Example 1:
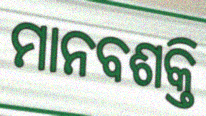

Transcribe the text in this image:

ମାନବଶକ୍ତି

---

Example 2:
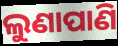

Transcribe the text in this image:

ଲୁଣାପାଣି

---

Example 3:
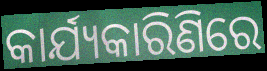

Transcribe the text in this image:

କାର୍ଯ୍ୟକାରିଣିରେ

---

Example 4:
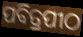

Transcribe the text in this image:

ପବିତ୍ରପୀଠ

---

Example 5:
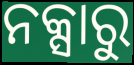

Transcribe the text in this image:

ନକ୍ସାରୁ